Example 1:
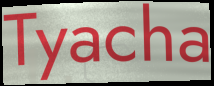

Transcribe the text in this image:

Tyacha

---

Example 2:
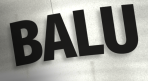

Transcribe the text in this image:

BALU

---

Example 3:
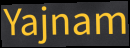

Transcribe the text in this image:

Yajnam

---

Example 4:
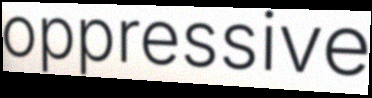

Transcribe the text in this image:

oppressive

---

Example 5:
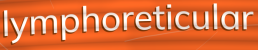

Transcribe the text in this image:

lymphoreticular